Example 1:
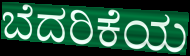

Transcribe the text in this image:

ಬೆದರಿಕೆಯ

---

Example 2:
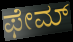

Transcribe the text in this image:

ಫೇಮ್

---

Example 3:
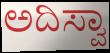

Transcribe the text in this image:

ಅದಿಸ್ವಾ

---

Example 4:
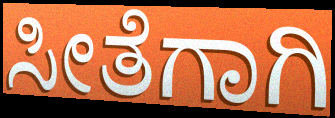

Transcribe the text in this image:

ಸೀತೆಗಾಗಿ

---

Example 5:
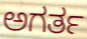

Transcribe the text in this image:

ಅಗರ್ತ